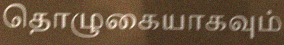
தொழுகையாகவும்